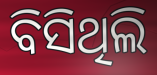
ବିସିଥିଲି